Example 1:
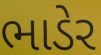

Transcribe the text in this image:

ભાડેર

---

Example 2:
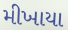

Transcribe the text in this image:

મીખાયા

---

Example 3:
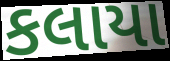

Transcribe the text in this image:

કલાયા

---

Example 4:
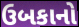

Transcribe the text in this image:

ઉબકાનો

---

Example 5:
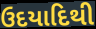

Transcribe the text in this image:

ઉદયાદિથી